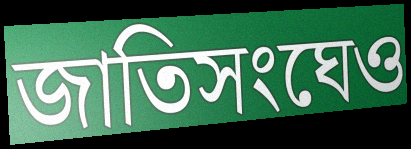
জাতিসংঘেও